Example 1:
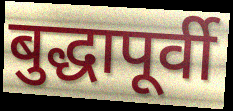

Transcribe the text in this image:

बुद्धापूर्वी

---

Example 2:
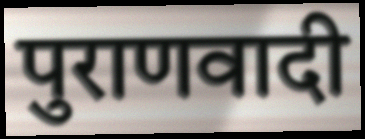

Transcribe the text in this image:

पुराणवादी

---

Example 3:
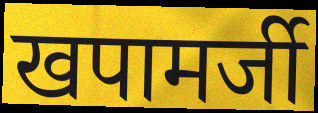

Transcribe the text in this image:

खपामर्जी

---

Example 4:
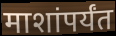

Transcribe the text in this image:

माशांपर्यंत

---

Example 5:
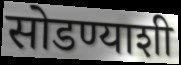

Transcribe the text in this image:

सोडण्याशी